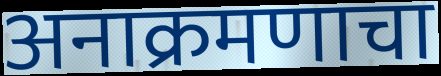
अनाक्रमणाचा